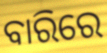
ବାରିରେ